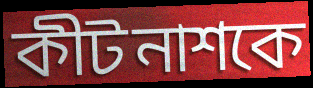
কীটনাশকে